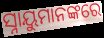
ସ୍ନାୟୁମାନଙ୍କରେ